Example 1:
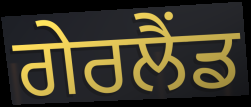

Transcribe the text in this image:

ਗੇਰਲੈਂਡ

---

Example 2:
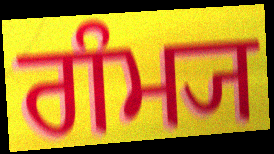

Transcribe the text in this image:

ਗੰਮ੍ਯ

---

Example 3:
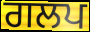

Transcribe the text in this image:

ਗਲਪ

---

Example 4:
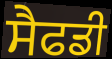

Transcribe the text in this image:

ਸੈਫਡੀ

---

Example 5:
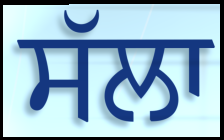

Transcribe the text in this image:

ਸੱਲਾ